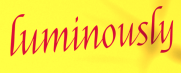
luminously